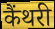
कैंथरी